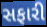
સફારી